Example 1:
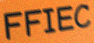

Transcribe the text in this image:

FFIEC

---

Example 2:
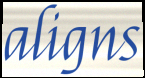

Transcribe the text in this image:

aligns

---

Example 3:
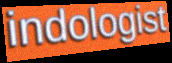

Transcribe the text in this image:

indologist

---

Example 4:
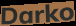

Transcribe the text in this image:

Darko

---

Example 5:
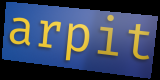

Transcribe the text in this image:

arpit